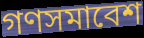
গণসমাবেশ